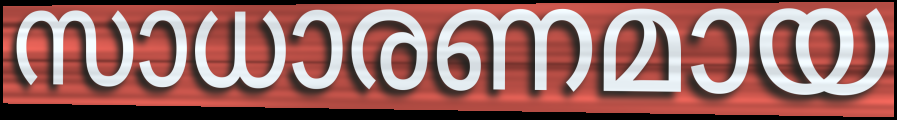
സാധാരണമായ